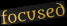
focused